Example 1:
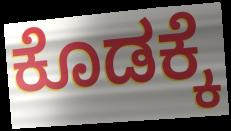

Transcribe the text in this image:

ಕೊಡಕ್ಕೆ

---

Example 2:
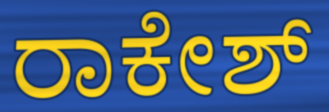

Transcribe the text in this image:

ರಾಕೇಶ್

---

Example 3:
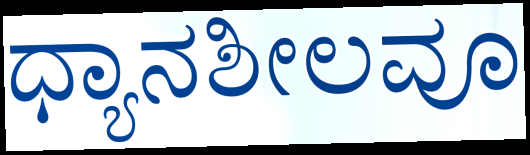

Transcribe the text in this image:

ಧ್ಯಾನಶೀಲವೂ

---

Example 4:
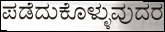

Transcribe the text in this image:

ಪಡೆದುಕೊಳ್ಳುವುದರ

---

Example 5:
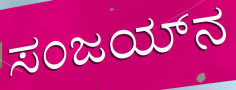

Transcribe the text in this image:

ಸಂಜಯ್‌ನ